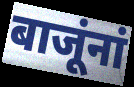
बाजूंनां